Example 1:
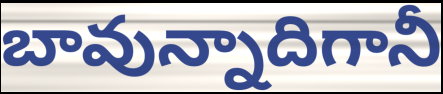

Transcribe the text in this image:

బావున్నాదిగానీ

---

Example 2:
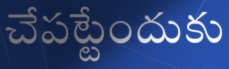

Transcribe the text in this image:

చేపట్టేందుకు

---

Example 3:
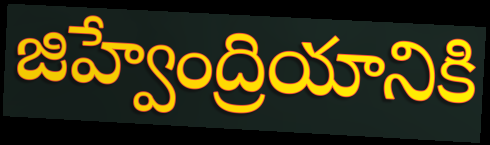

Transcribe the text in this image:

జిహ్వేంద్రియానికి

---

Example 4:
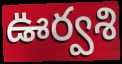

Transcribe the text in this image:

ఊర్వశి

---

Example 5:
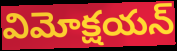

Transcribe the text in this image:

విమోక్షయన్